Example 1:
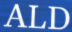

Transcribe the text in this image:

ALD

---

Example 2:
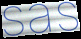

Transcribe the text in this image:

sas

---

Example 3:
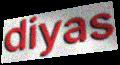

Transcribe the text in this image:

diyas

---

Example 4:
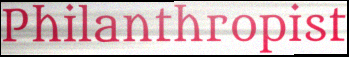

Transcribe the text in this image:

Philanthropist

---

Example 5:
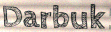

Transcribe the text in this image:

Darbuk